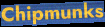
Chipmunks